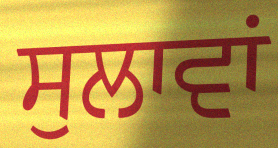
ਸੁਲਾਵਾਂ